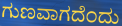
ಗುಣವಾಗದೆಂದು